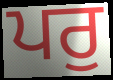
ਪਰੁ